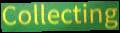
Collecting